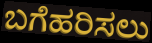
ಬಗೆಹರಿಸಲು